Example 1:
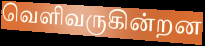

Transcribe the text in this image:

வெளிவருகின்றன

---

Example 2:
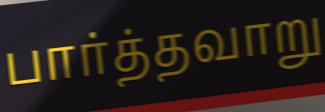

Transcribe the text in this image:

பார்த்தவாறு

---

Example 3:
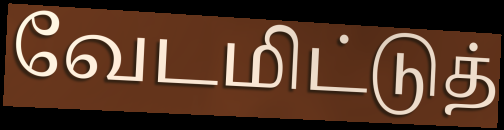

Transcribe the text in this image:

வேடமிட்டுத்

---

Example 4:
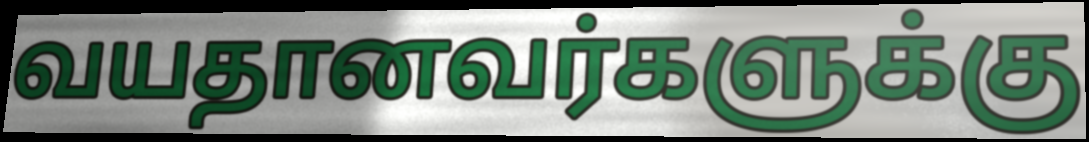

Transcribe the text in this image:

வயதானவர்களுக்கு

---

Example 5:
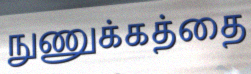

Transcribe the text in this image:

நுணுக்கத்தை